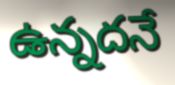
ఉన్నదనే